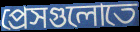
প্রেসগুলোতে